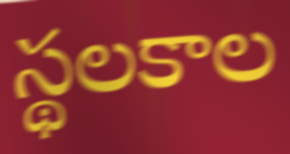
స్థలకాల